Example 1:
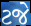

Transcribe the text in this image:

ટજે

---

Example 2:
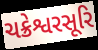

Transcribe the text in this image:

ચક્રેશ્વરસૂરિ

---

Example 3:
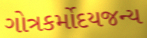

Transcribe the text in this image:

ગોત્રકર્મોદયજન્ય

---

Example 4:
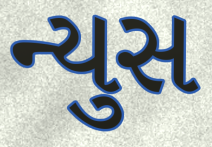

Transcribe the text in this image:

ન્યુસ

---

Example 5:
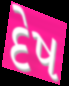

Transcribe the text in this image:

દેષ